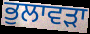
ਭੁਲਾਵੜਾ